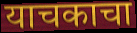
याचकाचा